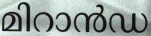
മിറാൻഡ